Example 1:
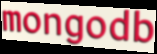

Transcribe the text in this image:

mongodb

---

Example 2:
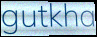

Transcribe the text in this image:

gutkha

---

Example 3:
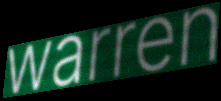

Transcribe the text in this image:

warren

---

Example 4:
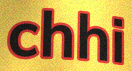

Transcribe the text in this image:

chhi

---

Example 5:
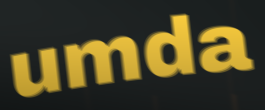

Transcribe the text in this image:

umda